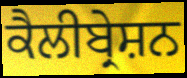
ਕੈਲੀਬ੍ਰੇਸ਼ਨ